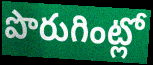
పొరుగింట్లో